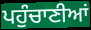
ਪਹੁੰਚਾਣੀਆਂ